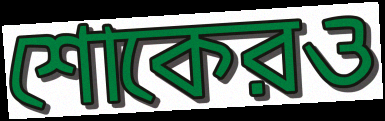
শোকেরও